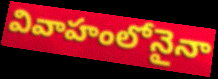
వివాహంలోనైనా